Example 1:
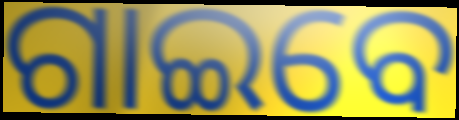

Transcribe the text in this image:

ଗାଇବେ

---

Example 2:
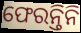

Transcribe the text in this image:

ଫେରନ୍ତିନି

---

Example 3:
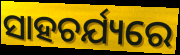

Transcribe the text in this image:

ସାହଚର୍ଯ୍ୟରେ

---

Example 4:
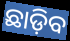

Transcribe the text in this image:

ଛାଡ଼ିବ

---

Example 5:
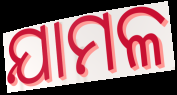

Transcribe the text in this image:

ଯାମଳ